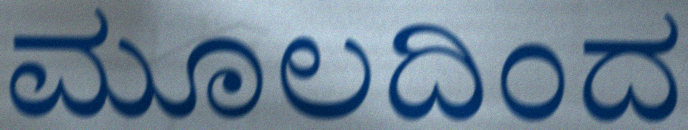
ಮೂಲದಿಂದ